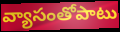
వ్యాసంతోపాటు